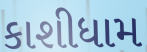
કાશીધામ